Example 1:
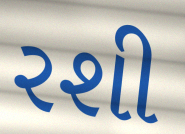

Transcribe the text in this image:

રશી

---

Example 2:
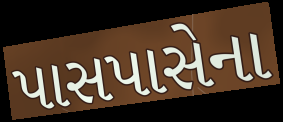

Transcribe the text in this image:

પાસપાસેના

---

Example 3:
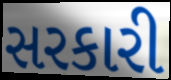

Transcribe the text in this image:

સરકારી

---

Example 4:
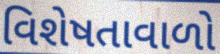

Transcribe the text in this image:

વિશેષતાવાળો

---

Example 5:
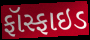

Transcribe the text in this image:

ફૉસ્ફાઇડ